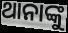
ଥାନାଙ୍କୁ